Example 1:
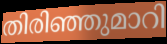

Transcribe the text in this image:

തിരിഞ്ഞുമാറി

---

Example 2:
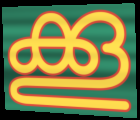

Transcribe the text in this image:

ക്കൂ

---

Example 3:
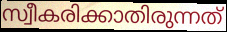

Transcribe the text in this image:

സ്വീകരിക്കാതിരുന്നത്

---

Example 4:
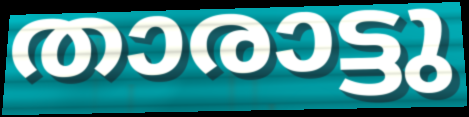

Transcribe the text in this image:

താരാട്ടു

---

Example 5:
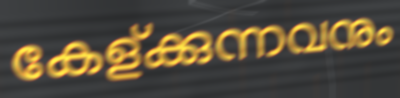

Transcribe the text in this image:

കേള്ക്കുന്നവനും